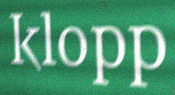
klopp